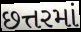
છત્તરમાં